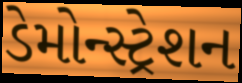
ડેમોન્સ્ટ્રેશન